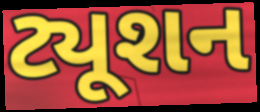
ટ્યૂશન